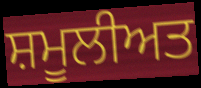
ਸ਼ਮੂਲੀਅਤ